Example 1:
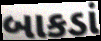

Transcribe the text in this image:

બાકડાં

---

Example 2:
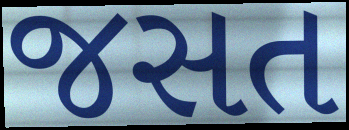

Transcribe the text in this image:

જસત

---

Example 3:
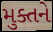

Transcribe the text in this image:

મુક્તને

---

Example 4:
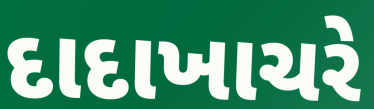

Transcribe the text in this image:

દાદાખાચરે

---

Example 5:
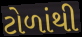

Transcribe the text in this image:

ટોળાંથી